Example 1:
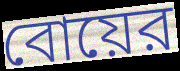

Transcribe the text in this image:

বোয়ের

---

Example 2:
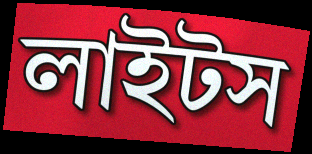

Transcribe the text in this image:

লাইটস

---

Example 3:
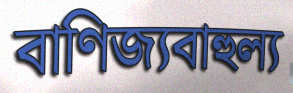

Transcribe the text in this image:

বাণিজ্যবাহুল্য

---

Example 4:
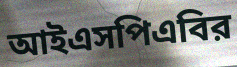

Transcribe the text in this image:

আইএসপিএবির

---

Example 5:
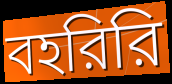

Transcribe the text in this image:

বহরিরি